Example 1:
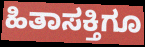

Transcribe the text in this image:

ಹಿತಾಸಕ್ತಿಗೂ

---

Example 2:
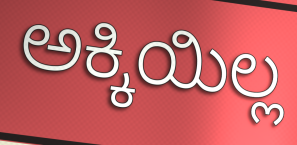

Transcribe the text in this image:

ಅಕ್ಕಿಯಿಲ್ಲ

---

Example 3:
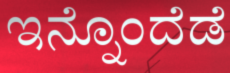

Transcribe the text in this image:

ಇನ್ನೊಂದೆಡೆ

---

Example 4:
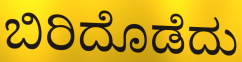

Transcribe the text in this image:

ಬಿರಿದೊಡೆದು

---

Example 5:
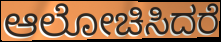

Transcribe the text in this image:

ಆಲೋಚಿಸಿದರೆ